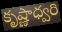
కృష్ణాధ్వరి